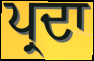
ਪ੍ਰਦਾ